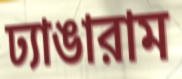
ঢ্যাঙারাম